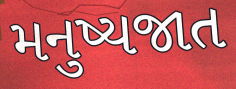
મનુષ્યજાત